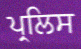
ਪ੍ਰਲਿਸ